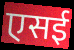
एसई